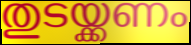
തുടയ്ക്കണം